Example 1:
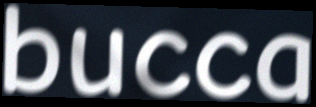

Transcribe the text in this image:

bucca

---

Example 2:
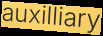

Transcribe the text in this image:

auxilliary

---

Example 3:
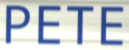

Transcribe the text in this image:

PETE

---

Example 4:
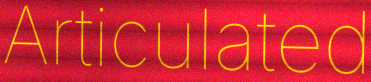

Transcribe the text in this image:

Articulated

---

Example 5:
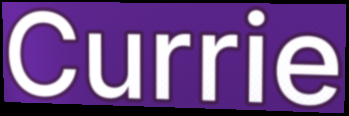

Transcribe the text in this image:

Currie